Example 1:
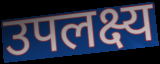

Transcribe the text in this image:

उपलक्ष्य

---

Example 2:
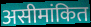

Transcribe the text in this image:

असीमांकित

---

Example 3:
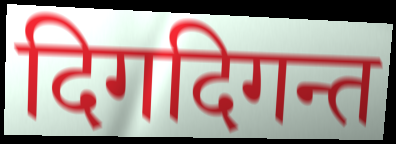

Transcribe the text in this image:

दिगदिगन्त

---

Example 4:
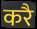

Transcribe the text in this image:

करै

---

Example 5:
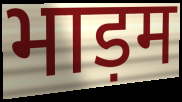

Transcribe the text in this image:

भाड़म